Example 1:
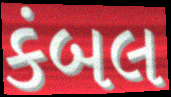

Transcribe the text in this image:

કંબલ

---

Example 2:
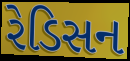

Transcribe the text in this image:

રેડિસન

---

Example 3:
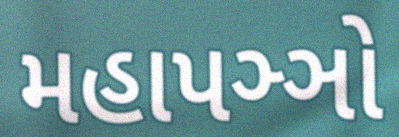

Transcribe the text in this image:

મહાપઞ્ઞો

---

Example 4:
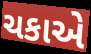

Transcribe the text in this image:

ચકાએ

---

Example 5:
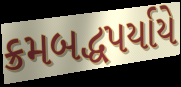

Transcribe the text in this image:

ક્રમબદ્ધપર્યાયે